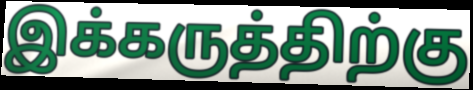
இக்கருத்திற்கு